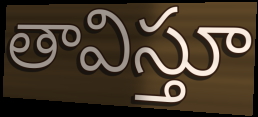
తావిస్తూ